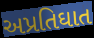
અપ્રતિઘાત